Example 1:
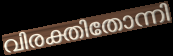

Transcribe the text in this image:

വിരക്തിതോന്നി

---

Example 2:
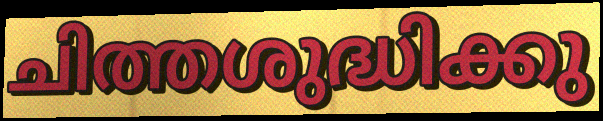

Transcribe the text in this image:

ചിത്തശുദ്ധിക്കു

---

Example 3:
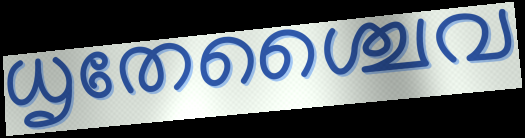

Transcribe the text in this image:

ധൃതേശ്ചൈവ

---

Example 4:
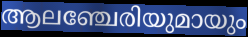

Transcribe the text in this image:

ആലഞ്ചേരിയുമായും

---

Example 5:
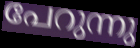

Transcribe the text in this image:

പേറുന്നു